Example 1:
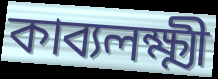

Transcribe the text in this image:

কাব্যলক্ষ্মী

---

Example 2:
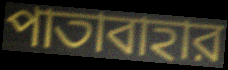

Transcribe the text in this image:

পাতাবাহার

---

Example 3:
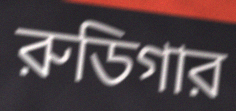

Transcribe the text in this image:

রুডিগার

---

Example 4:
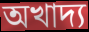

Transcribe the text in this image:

অখাদ্য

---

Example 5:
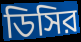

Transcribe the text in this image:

ডিসির